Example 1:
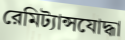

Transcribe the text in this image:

রেমিট্যান্সযোদ্ধা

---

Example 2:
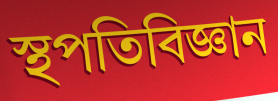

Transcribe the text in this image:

স্থপতিবিজ্ঞান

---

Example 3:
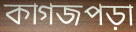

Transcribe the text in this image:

কাগজপড়া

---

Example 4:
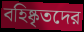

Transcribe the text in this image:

বহিষ্কৃতদের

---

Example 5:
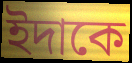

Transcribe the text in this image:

ইদাকে